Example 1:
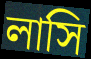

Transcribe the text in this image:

লাসি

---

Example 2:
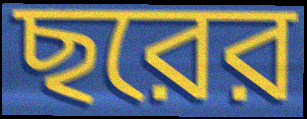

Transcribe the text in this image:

ছরের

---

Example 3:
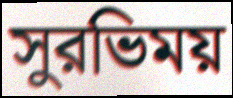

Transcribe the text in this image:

সুরভিময়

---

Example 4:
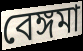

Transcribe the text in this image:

বেঙ্গমা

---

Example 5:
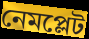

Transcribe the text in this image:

নেমপ্লেট